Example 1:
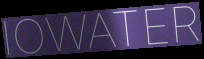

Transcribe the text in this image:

IOWATER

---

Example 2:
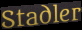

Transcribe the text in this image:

Stadler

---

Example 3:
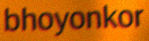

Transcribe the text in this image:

bhoyonkor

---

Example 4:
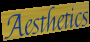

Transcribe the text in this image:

Aesthetics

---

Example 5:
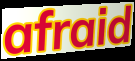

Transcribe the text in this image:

afraid